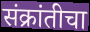
संक्रांतीचा